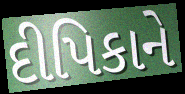
દીપિકાને